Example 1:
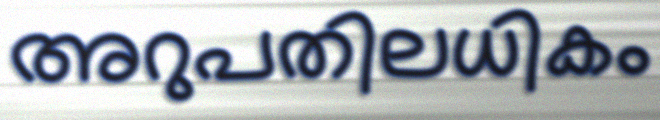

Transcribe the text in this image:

അറുപതിലധികം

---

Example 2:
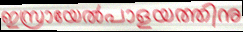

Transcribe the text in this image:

ഇസ്രായേൽപാളയത്തിനു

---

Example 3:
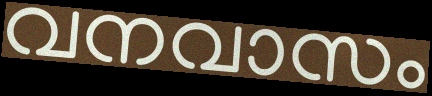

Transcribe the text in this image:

വനവാസം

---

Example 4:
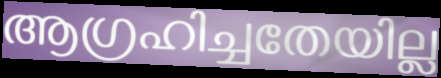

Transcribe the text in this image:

ആഗ്രഹിച്ചതേയില്ല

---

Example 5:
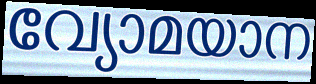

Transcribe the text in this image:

വ്യോമയാന